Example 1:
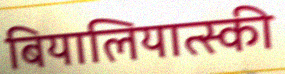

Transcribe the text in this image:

बियालियात्स्की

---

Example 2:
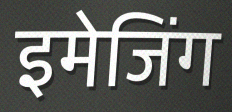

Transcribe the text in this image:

इमेजिंग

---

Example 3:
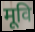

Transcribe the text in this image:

मूवि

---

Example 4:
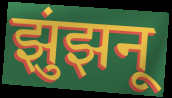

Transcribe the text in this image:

झुंझनू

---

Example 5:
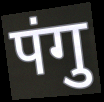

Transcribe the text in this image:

पंगु